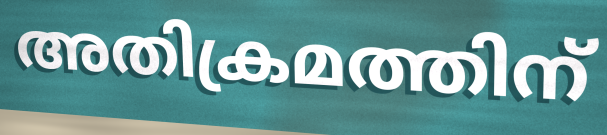
അതിക്രമത്തിന്